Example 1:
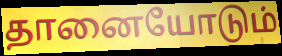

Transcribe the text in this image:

தானையோடும்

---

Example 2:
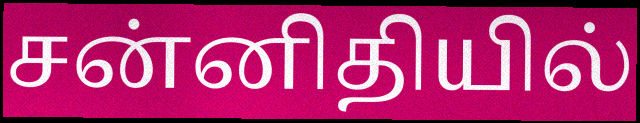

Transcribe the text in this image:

சன்னிதியில்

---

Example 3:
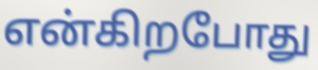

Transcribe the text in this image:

என்கிறபோது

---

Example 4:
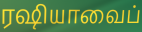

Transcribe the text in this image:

ரஷியாவைப்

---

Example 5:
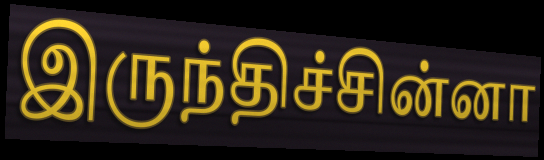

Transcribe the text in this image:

இருந்திச்சின்னா